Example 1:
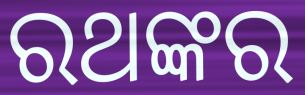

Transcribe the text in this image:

ରଥଙ୍କର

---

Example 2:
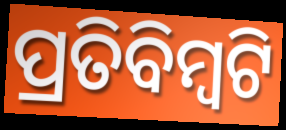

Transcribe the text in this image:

ପ୍ରତିବିମ୍ବଟି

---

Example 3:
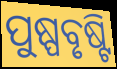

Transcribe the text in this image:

ପୁଷ୍ପବୃଷ୍ଟି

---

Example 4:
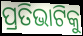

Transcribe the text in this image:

ପ୍ରତିଭାଟିକୁ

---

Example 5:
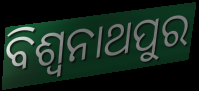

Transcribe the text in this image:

ବିଶ୍ଵନାଥପୁର